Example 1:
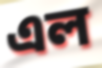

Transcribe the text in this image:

এল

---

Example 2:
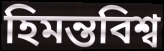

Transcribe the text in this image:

হিমন্তবিশ্ব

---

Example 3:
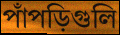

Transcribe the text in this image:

পাঁপড়িগুলি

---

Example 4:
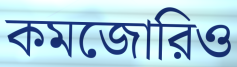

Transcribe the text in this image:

কমজোরিও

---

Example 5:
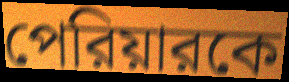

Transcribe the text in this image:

পেরিয়ারকে